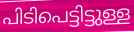
പിടിപെട്ടിട്ടുള്ള